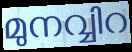
മുനവ്വിറ